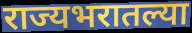
राज्यभरातल्या